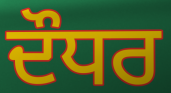
ਦੌਧਰ